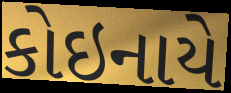
કોઇનાયે